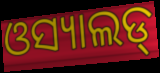
ଓସ୍ୟାଲଡ୍